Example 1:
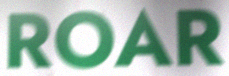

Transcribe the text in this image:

ROAR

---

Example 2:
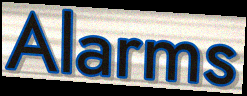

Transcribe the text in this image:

Alarms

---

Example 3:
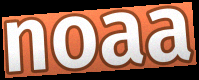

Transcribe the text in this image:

noaa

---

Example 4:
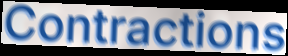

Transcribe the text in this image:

Contractions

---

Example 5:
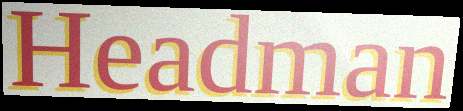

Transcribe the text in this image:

Headman